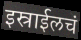
इस्राईलचं